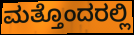
ಮತ್ತೊಂದರಲ್ಲಿ